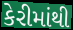
કેરીમાંથી